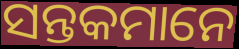
ସନ୍ତକମାନେ